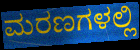
ಮರಣಗಳಲ್ಲಿ